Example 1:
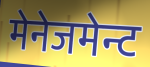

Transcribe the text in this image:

मेनेजमेन्ट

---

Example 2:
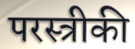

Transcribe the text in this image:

परस्त्रीकी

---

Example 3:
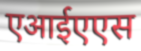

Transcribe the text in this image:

एआईएएस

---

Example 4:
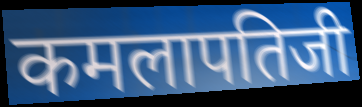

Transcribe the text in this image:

कमलापतिजी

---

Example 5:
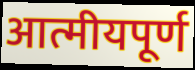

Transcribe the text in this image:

आत्मीयपूर्ण